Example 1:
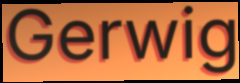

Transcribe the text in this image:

Gerwig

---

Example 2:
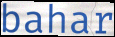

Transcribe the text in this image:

bahar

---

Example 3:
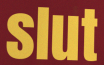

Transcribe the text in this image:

slut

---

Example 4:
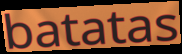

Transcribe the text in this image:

batatas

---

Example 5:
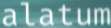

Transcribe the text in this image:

alatum